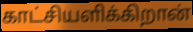
காட்சியளிக்கிறான்